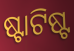
ଷ୍ଟାଟିଷ୍ଟ